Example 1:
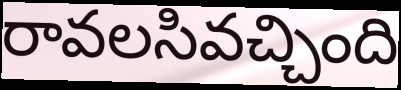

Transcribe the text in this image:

రావలసివచ్చింది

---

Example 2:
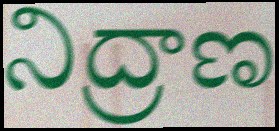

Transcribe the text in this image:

నిద్రాణ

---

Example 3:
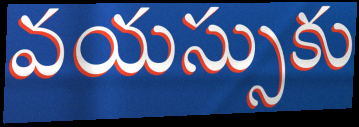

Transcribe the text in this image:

వయస్సుకు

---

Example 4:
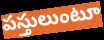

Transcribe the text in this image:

పస్తులుంటూ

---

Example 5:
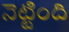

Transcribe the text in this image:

నెట్టింది